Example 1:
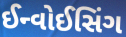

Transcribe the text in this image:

ઈન્વોઈસિંગ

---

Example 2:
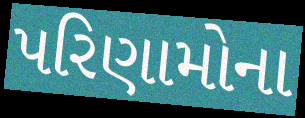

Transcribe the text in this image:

પરિણામોના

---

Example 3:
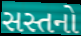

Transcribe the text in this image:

સસ્તનો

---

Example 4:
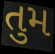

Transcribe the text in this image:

તુમ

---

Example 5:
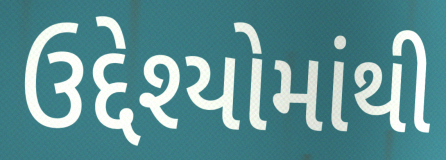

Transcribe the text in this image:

ઉદ્દેશ્યોમાંથી